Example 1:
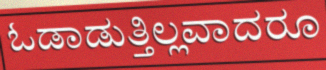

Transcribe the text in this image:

ಓಡಾಡುತ್ತಿಲ್ಲವಾದರೂ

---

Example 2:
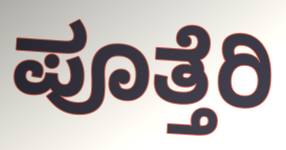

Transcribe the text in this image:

ಪೂತ್ತೆರಿ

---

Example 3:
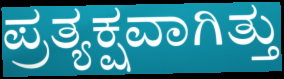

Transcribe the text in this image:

ಪ್ರತ್ಯಕ್ಷವಾಗಿತ್ತು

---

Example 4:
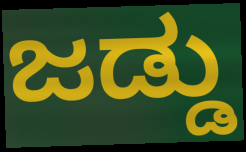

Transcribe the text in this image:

ಜಡ್ಡು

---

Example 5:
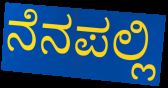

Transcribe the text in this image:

ನೆನಪಲ್ಲಿ